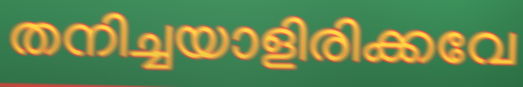
തനിച്ചയാളിരിക്കവേ